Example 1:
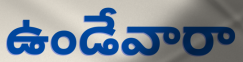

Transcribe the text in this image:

ఉండేవారా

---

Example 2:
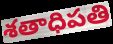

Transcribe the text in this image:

శతాధిపతి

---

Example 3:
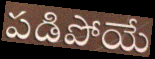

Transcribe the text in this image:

పడిపోయే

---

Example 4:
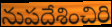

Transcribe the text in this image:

నుపదేశించిరి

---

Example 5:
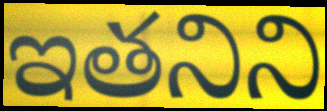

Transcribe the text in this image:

ఇతనిని